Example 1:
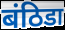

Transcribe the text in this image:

बंठिडा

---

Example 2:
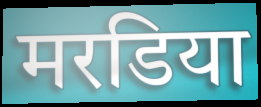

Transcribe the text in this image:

मरडिया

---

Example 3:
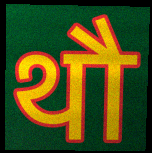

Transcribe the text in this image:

थौ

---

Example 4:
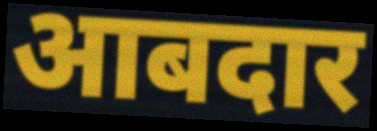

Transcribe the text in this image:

आबदार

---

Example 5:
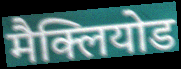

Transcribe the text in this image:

मैक्लियोड